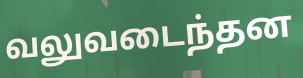
வலுவடைந்தன